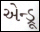
એન્ડ્રૂ